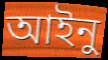
আইনু